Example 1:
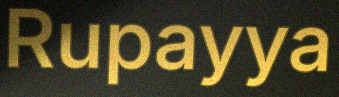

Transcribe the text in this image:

Rupayya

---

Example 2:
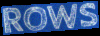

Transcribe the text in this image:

ROWS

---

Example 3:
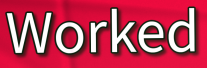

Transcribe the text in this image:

Worked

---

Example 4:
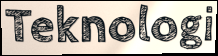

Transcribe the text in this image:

Teknologi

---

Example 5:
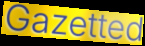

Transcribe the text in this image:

Gazetted